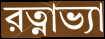
রত্নাভ্যা